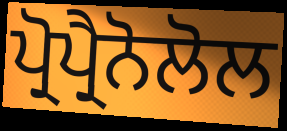
ਪ੍ਰੋਪ੍ਰੈਨੋਲੋਲ